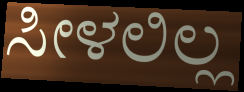
ಸೀಳಲಿಲ್ಲ